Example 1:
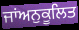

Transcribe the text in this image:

ਜਾਂਅਨੁਕੂਲਿਤ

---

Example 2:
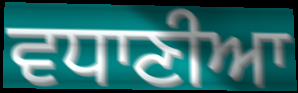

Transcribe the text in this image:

ਵਧਾਣੀਆ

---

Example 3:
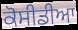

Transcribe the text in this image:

ਕੋਸੀਡੀਆ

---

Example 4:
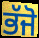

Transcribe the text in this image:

ਭੱਜੋ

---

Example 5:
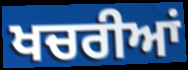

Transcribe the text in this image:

ਖਚਰੀਆਂ